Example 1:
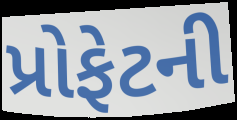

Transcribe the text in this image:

પ્રોફેટની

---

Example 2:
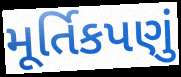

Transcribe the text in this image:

મૂર્તિકપણું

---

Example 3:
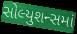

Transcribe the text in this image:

સોલ્યુશન્સમાં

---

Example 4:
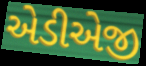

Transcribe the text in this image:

એડીએજી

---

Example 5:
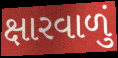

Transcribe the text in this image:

ક્ષારવાળું